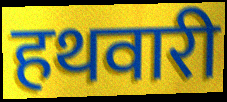
हथवारी